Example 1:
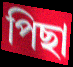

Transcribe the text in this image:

পিছা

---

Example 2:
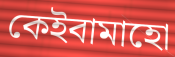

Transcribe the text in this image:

কেইবামাহো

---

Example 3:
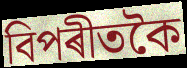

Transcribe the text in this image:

বিপৰীতকৈ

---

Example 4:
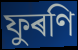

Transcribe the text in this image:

ফুৰণি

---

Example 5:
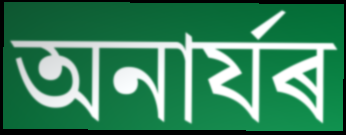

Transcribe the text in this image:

অনাৰ্যৰ